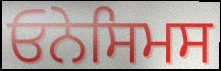
ਓਨੇਸਿਮਸ